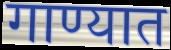
गाण्यात